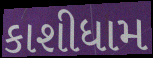
કાશીધામ